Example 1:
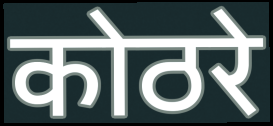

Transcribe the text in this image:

कोठरे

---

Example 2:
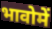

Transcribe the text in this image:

भावोमें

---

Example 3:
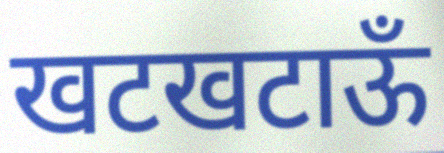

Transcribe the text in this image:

खटखटाऊँ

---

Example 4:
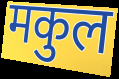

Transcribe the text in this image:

मकुल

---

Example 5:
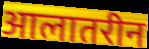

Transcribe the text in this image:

आलातरीन